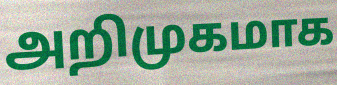
அறிமுகமாக